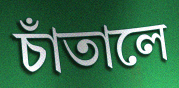
চাঁতালে